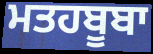
ਮਤਹਬੂਬਾ